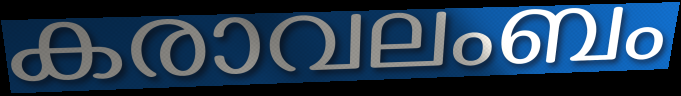
കരാവലംബം